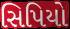
સિપિયો